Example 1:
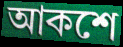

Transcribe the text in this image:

আকশে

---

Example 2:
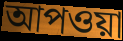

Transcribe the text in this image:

আপওয়া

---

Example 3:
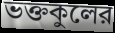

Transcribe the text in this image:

ভক্তকুলের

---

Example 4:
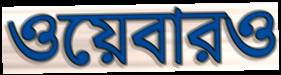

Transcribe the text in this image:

ওয়েবারও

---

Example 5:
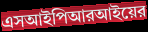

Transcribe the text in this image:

এসআইপিআরআইয়ের